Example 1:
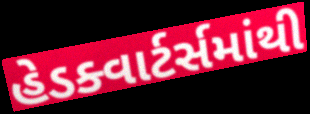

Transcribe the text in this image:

હેડક્વાર્ટર્સમાંથી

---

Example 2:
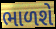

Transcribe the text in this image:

ભાળશે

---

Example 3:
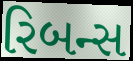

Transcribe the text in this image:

રિબન્સ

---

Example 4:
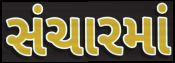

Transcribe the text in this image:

સંચારમાં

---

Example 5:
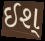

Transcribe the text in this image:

ઈશ્